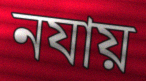
নযায়